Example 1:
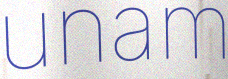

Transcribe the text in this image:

unam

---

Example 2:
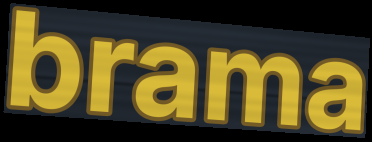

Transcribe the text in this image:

brama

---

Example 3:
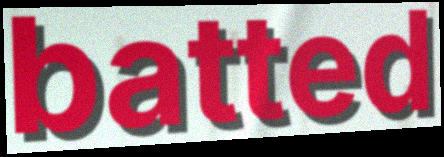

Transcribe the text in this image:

batted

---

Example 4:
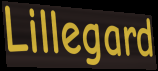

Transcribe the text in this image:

Lillegard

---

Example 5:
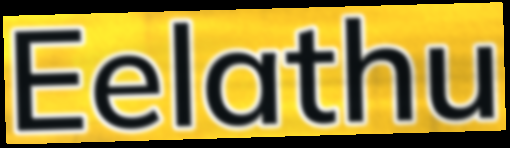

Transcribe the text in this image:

Eelathu